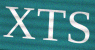
XTS